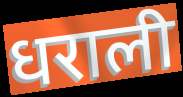
धराली